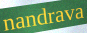
nandrava